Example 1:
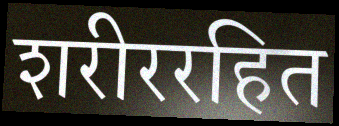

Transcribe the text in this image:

शरीररहित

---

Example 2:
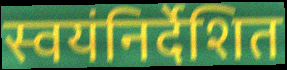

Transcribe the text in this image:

स्वयंनिर्देशित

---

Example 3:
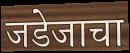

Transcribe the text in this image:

जडेजाचा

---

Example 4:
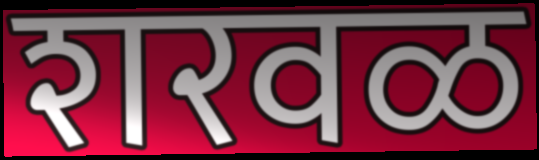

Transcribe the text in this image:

शरवळ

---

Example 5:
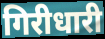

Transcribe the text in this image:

गिरीधारी